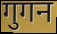
गुगन